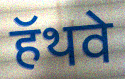
हॅथवे